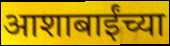
आशाबाईंच्या